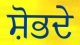
ਸ਼ੋਭਦੇ